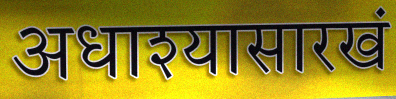
अधाश्यासारखं